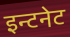
इन्टनेट